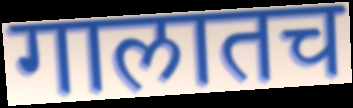
गालातच